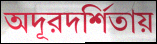
অদূরদর্শিতায়